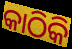
କାଠିକି